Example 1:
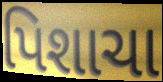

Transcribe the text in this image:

પિશાચા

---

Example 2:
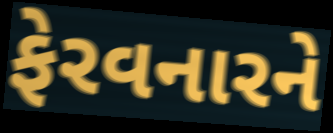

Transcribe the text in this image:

ફેરવનારને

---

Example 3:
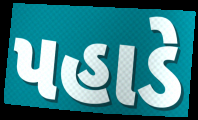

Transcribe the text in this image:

પહાડે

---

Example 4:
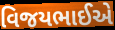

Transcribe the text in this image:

વિજયભાઈએ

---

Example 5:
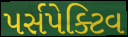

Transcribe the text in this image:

પર્સપેક્ટિવ